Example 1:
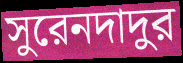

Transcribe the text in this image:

সুরেনদাদুর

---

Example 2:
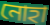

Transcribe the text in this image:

নোহা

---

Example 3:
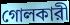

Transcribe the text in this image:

গোলকারী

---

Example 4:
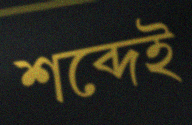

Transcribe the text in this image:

শব্দেই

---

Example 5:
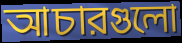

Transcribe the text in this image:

আচারগুলো